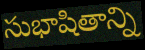
సుభాషితాన్ని